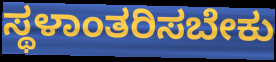
ಸ್ಥಳಾಂತರಿಸಬೇಕು